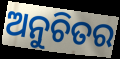
ଅନୁଚିତର